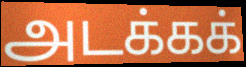
அடக்கக்